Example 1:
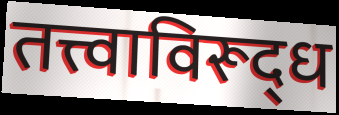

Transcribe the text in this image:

तत्त्वाविरूद्ध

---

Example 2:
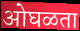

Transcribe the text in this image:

ओघळता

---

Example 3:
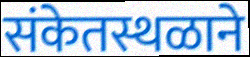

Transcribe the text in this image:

संकेतस्थळाने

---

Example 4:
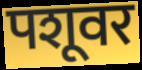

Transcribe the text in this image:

पशूवर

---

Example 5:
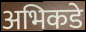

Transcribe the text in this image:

अभिकडे